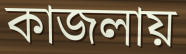
কাজলায়